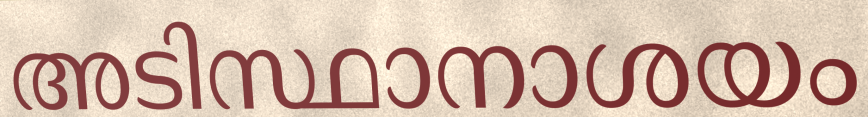
അടിസ്ഥാനാശയം